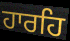
ਹਾਰਹਿ